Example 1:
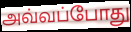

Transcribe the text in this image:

அவ்வப்போது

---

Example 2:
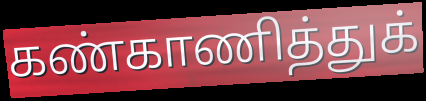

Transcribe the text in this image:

கண்காணித்துக்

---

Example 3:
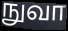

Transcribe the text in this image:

நுவா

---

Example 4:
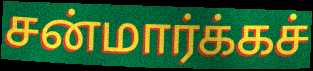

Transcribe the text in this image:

சன்மார்க்கச்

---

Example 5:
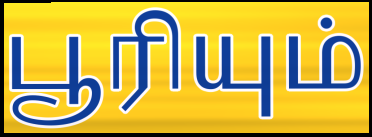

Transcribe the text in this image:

பூரியும்